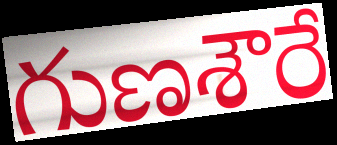
గుణశౌరే